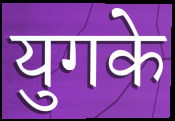
युगके